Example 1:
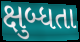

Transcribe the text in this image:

ક્ષુબ્ધતા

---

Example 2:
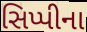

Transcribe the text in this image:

સિપ્પીના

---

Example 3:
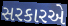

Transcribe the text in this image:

સરકારએ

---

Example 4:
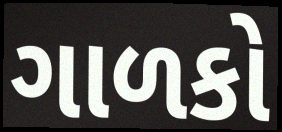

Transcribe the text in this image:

ગાળકો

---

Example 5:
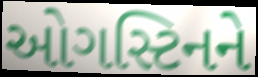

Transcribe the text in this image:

ઓગસ્ટિનને